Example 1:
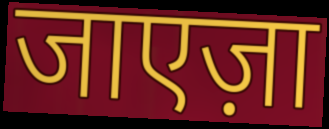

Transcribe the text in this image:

जाएज़ा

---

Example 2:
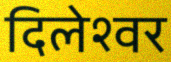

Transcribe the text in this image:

दिलेश्वर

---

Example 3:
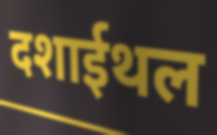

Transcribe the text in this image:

दशाईथल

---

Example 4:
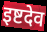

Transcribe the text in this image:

इष्टदेव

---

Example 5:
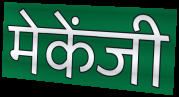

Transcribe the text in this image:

मेकेंजी